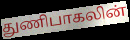
துணிபாகலின்